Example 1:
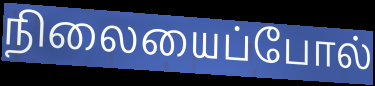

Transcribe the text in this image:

நிலையைப்போல்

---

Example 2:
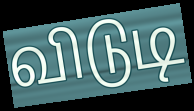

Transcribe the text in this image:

விடுடி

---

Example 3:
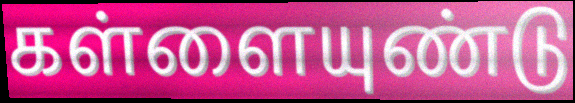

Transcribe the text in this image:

கள்ளையுண்டு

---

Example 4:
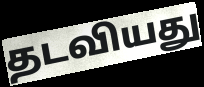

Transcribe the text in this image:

தடவியது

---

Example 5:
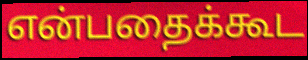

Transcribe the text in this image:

என்பதைக்கூட